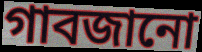
গাবজানো